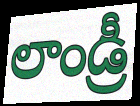
లాండ్రీ